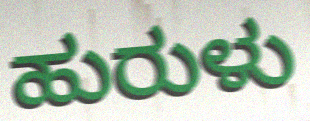
ಹುರುಳು